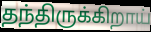
தந்திருக்கிறாய்